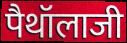
पैथॉलाजी